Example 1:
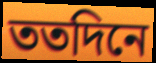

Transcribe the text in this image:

ততদিনে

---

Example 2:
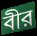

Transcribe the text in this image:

বীর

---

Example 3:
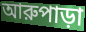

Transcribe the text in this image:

আরুপাড়া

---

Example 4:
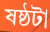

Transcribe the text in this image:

ষষ্ঠটা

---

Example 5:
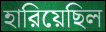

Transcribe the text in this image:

হারিয়েছিল